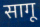
सागू